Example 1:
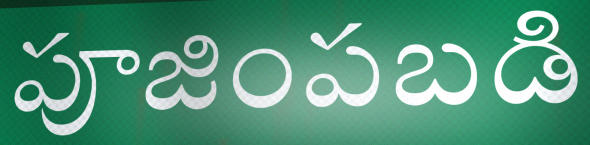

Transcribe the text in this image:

పూజింపబడి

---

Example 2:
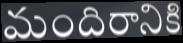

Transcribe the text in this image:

మందిరానికి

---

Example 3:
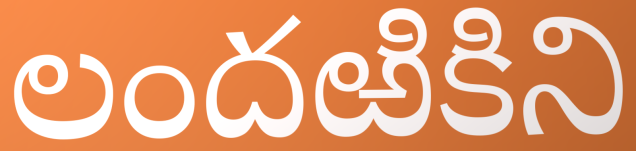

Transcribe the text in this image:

లందఱికిని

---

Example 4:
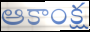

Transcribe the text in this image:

ఆకాంక్ష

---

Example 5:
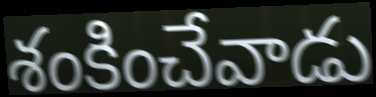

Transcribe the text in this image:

శంకించేవాడు